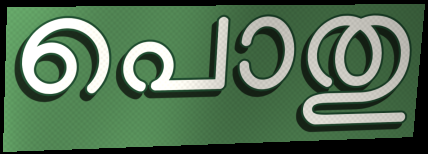
പൊതു